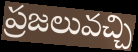
ప్రజలువచ్చి